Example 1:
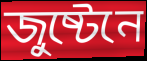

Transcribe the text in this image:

জুষ্টেনে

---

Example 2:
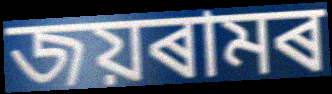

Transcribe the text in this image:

জয়ৰামৰ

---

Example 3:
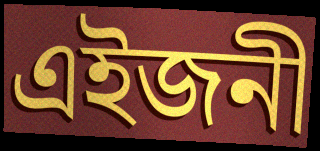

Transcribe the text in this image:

এইজনী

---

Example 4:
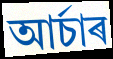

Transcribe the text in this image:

আৰ্চাৰ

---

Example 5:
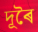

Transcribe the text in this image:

দূৰৈ